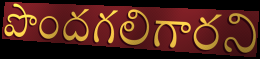
పొందగలిగారని